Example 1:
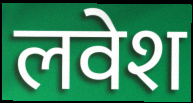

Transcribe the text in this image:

लवेश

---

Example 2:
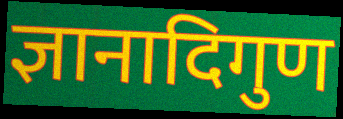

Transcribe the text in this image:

ज्ञानादिगुण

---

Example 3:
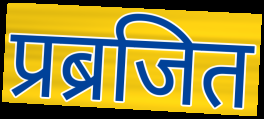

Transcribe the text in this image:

प्रब्रजित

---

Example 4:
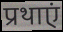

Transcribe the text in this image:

प्रथाएं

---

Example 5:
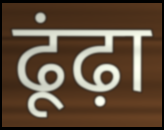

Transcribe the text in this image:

ढूंढ़ा